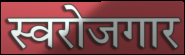
स्‍वरोजगार